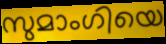
സുമാംഗിയെ